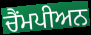
ਚੈਂਮਪੀਅਨ